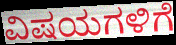
ವಿಷಯಗಳಿಗೆ